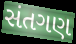
સંતગણ